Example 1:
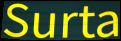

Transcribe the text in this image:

Surta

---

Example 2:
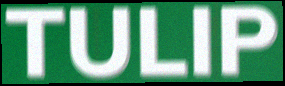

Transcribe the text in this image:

TULIP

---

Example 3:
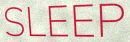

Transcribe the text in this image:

SLEEP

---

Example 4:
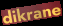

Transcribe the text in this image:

dikrane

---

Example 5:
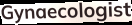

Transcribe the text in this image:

Gynaecologist